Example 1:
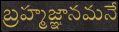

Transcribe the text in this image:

బ్రహ్మజ్ఞానమనే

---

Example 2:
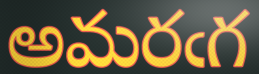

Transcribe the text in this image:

అమరఁగ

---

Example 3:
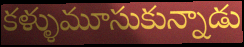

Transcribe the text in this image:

కళ్ళుమూసుకున్నాడు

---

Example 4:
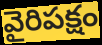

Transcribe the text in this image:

వైరిపక్షం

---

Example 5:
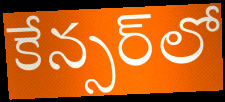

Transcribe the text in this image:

కేన్సర్‌లో